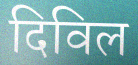
दिविल